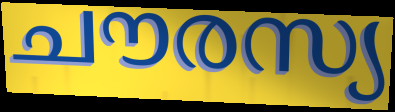
ചൗരസ്യ